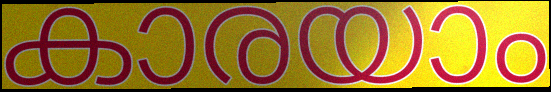
കാരയാം